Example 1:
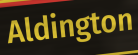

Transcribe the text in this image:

Aldington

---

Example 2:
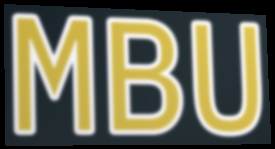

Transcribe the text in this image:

MBU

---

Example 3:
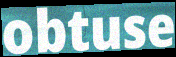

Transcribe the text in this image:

obtuse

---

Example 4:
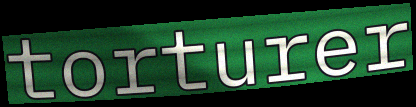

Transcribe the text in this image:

torturer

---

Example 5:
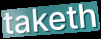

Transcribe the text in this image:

taketh